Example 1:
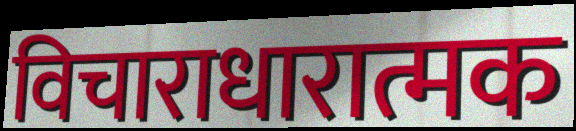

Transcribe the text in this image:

विचाराधारात्मक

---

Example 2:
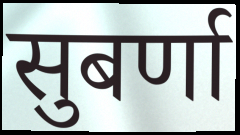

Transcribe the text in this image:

सुबर्णा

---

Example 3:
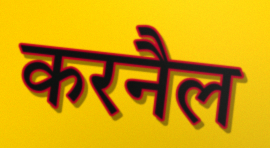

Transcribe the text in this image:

करनैल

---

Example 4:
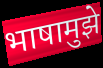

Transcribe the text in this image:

भाषामुझे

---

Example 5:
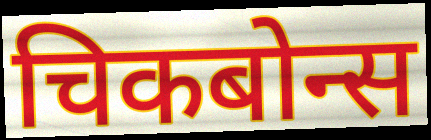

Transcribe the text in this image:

चिकबोन्स